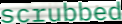
scrubbed